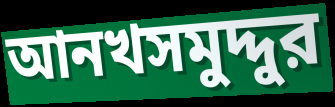
আনখসমুদ্দুর